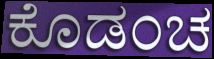
ಕೊಡಂಚ